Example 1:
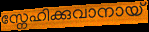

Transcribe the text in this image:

സ്നേഹിക്കുവാനായ്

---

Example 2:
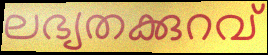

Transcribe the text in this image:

ലഭ്യതക്കുറവ്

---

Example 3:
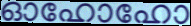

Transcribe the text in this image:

ഓഹോഹോ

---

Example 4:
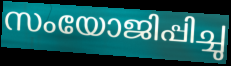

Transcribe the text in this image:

സംയോജിപ്പിച്ചു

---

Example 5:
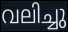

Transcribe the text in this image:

വലിച്ചു